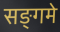
सङ्गमे